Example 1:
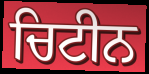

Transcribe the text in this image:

ਚਿਟੀਨ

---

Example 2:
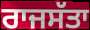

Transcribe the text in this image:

ਰਾਜਸੱਤਾ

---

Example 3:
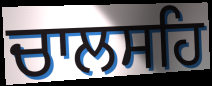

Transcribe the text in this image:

ਚਾਲਸਹਿ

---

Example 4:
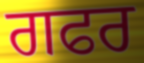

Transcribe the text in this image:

ਗਫਰ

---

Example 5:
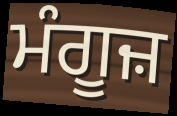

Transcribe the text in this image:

ਮੰਗੂਜ਼